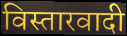
विस्तारवादी